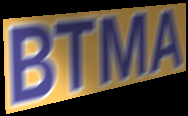
BTMA